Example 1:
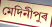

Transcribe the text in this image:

মেদিনীপুৰ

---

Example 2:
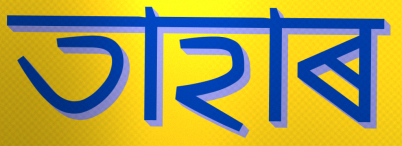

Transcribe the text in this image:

তাহাৰ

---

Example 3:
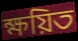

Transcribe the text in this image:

ক্ষয়িত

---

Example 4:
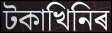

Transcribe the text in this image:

টকাখিনিৰ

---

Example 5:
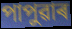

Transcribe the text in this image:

পাপুৱাৰ